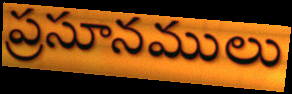
ప్రసూనములు